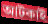
আটকাই